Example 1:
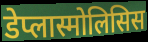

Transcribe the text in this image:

डेप्लास्मोलिसिस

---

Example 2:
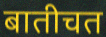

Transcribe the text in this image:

बातीचत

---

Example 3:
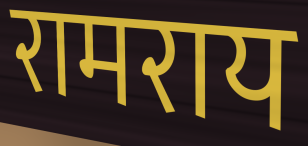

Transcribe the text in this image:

रामराय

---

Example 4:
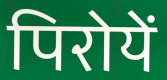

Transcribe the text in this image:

पिरोयें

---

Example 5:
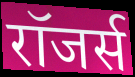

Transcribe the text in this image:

रॉजर्स